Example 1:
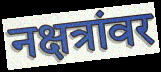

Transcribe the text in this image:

नक्षत्रांवर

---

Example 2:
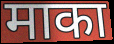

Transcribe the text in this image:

माका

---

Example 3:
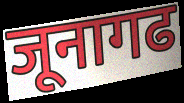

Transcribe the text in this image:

जूनागढ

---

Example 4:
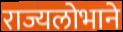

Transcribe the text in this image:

राज्यलोभाने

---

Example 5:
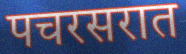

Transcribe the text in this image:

पचरसरात